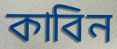
কাবিন